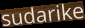
sudarike